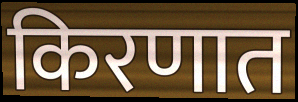
किरणात